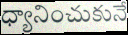
ధ్యానించుకునే